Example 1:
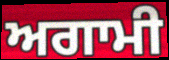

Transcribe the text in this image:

ਅਗਾਮੀ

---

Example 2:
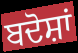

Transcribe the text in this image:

ਬਦੋਸ਼ਾਂ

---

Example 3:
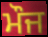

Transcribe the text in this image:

ਮੌਜ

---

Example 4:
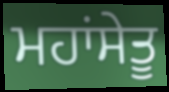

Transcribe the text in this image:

ਮਹਾਂਸੇਤੂ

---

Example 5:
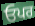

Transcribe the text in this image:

ਓਪਰ